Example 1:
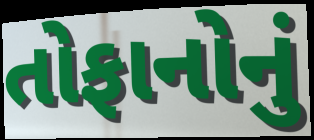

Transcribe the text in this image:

તોફાનોનું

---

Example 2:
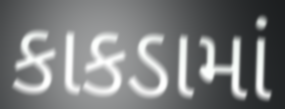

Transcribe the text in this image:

કાકડામાં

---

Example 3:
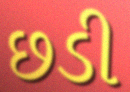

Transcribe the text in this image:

છડી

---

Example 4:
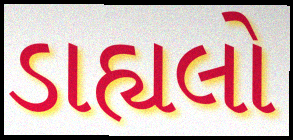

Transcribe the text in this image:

ડાહ્યલો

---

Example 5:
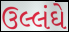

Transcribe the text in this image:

ઉલ્લંઘે